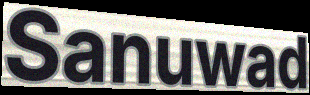
Sanuwad